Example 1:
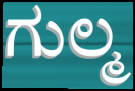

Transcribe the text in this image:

ಗುಲ್ಮ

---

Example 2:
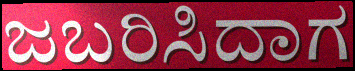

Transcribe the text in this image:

ಜಬರಿಸಿದಾಗ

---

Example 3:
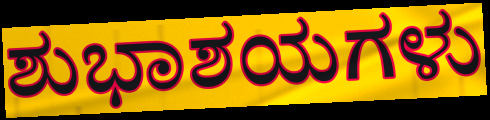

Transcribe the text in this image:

ಶುಭಾಶಯಗಳು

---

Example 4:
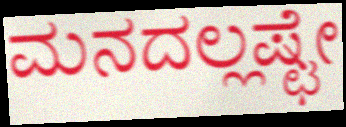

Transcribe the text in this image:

ಮನದಲ್ಲಷ್ಟೇ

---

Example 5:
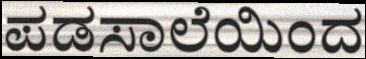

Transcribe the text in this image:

ಪಡಸಾಲೆಯಿಂದ